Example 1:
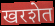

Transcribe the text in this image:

खरशेत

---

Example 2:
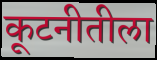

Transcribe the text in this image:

कूटनीतीला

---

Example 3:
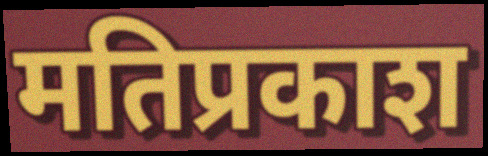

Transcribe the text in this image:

मतिप्रकाश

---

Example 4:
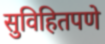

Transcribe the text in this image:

सुविहितपणे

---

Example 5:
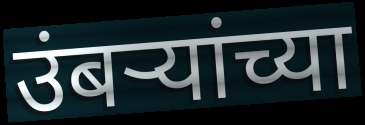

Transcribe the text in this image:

उंबऱ्यांच्या